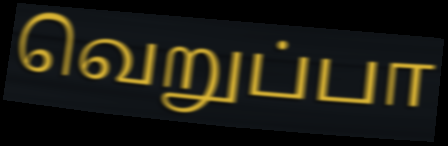
வெறுப்பா